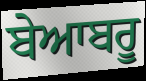
ਬੇਆਬਰੂ